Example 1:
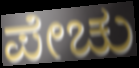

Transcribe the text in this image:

ಪೇಚು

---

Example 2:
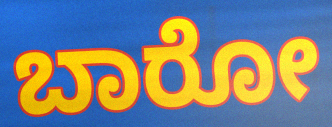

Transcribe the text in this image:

ಬಾರೋ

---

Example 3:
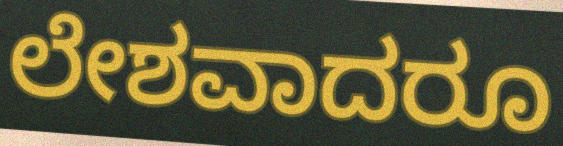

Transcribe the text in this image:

ಲೇಶವಾದರೂ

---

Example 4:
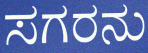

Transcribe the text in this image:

ಸಗರನು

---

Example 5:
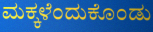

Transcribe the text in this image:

ಮಕ್ಕಳೆಂದುಕೊಂಡು